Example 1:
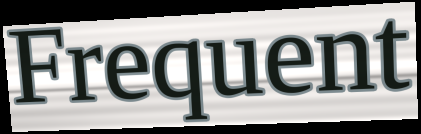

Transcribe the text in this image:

Frequent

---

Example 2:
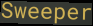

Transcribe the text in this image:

Sweeper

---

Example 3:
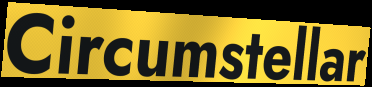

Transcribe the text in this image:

Circumstellar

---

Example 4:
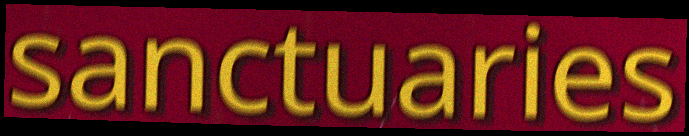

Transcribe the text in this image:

sanctuaries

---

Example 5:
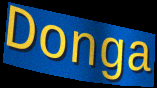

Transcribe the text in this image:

Donga